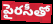
పైరసీతో